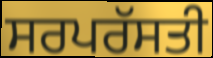
ਸਰਪਰੱਸਤੀ